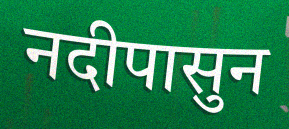
नदीपासुन